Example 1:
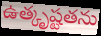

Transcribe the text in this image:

ఉత్కృష్టతను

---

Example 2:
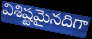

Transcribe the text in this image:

విశిష్టమైనదిగా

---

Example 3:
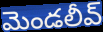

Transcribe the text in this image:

మెండలీవ్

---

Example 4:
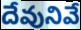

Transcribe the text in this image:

దేవునివే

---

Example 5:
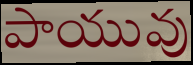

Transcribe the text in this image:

పాయువు